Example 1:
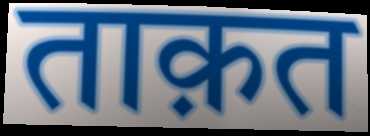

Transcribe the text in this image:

ताक़त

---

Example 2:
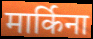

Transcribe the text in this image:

मार्किना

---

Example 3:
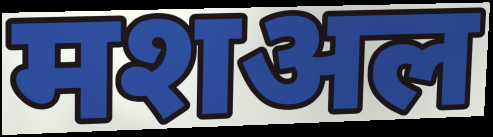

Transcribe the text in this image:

मशअल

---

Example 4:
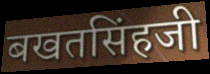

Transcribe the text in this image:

बखतसिंहजी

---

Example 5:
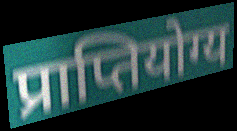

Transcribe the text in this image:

प्राप्तियोग्य